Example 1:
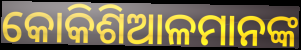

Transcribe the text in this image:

କୋକିଶିଆଳମାନଙ୍କ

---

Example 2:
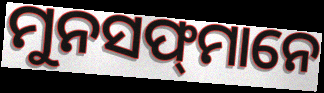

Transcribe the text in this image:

ମୁନସଫ୍‍ମାନେ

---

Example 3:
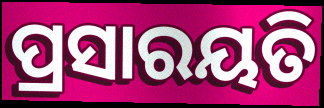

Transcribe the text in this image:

ପ୍ରସାରୟତି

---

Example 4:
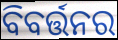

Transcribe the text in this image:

ବିବର୍ତ୍ତନର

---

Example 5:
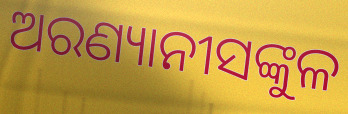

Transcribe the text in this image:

ଅରଣ୍ୟାନୀସଙ୍କୁଳ